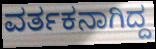
ವರ್ತಕನಾಗಿದ್ದ